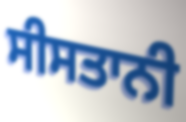
ਸੀਸਤਾਨੀ